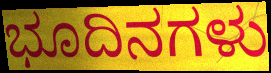
ಭೂದಿನಗಳು